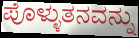
ಪೊಳ್ಳುತನವನ್ನು